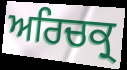
ਅਰਿਚਕ੍ਰ